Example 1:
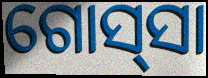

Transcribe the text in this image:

ଗୋସ୍‌ସା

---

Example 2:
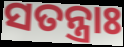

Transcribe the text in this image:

ସତନ୍ତ୍ରାଃ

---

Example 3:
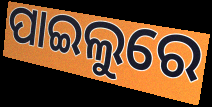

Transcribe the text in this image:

ପାଇଲୁରେ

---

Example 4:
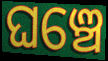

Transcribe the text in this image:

ଘଞ୍ଚେ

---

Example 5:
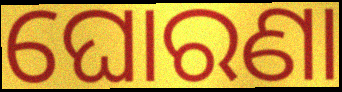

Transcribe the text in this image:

ଘୋରଣା